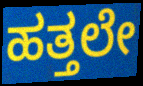
ಹತ್ತಲೇ